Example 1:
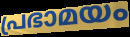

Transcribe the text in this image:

പ്രഭാമയം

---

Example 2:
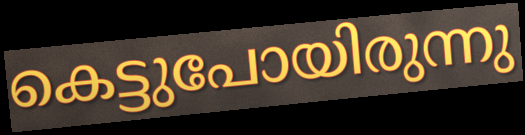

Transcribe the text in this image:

കെട്ടുപോയിരുന്നു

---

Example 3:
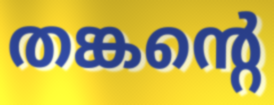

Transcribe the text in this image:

തങ്കന്റെ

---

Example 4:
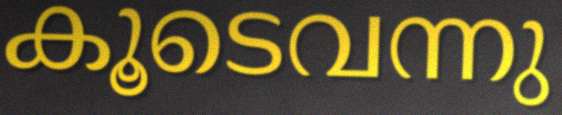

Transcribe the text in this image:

കൂടെവന്നു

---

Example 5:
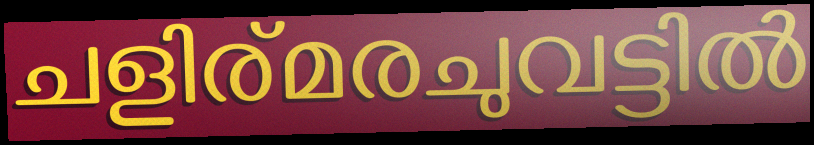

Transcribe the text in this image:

ചളിര്മരചുവട്ടിൽ